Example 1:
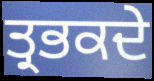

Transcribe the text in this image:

ਤ੍ਰਭਕਦੇ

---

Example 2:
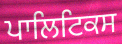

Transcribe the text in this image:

ਪਾਲਿਟਿਕਸ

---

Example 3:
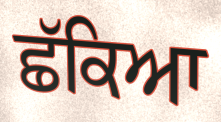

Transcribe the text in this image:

ਛੱਕਿਆ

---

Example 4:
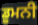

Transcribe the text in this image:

ਡੂਮਨੀ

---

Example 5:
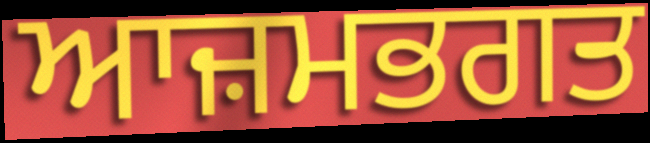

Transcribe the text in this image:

ਆਜ਼ਮਭਗਤ